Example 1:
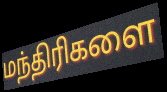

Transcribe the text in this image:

மந்திரிகளை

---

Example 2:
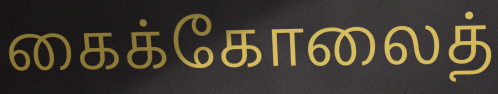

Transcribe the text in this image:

கைக்கோலைத்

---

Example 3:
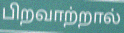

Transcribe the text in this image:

பிறவாற்றால்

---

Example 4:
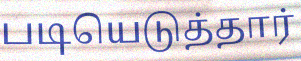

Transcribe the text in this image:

படியெடுத்தார்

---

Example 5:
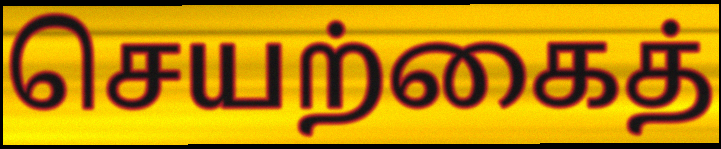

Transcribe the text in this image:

செயற்கைத்